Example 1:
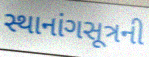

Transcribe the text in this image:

સ્થાનાંગસૂત્રની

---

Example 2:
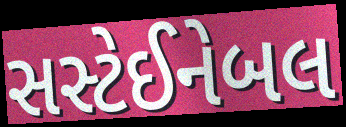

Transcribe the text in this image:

સસ્ટેઈનેબલ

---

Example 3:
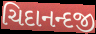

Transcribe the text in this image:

ચિદાનન્દજી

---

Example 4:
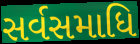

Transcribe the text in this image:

સર્વસમાધિ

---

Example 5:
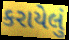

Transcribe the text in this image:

કરાયેલું